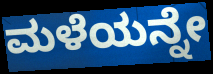
ಮಳೆಯನ್ನೇ